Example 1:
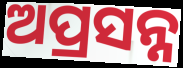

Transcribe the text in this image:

ଅପ୍ରସନ୍ନ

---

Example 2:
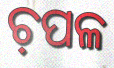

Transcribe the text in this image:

ଚ଼ପଳ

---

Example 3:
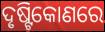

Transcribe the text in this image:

ଦୃଷ୍ଟିକୋଣରେ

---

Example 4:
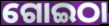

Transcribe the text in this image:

ଗୋଇଠା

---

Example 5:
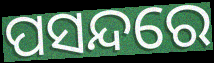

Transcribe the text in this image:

ପସନ୍ଦରେ